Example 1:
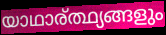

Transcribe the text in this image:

യാഥാര്ത്ഥ്യങ്ങളും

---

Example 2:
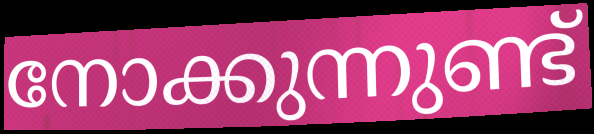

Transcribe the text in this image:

നോക്കുന്നുണ്ട്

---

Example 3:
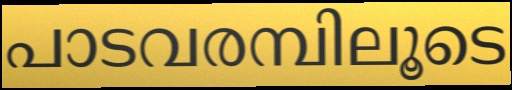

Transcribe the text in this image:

പാടവരമ്പിലൂടെ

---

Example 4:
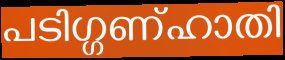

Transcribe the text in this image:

പടിഗ്ഗണ്ഹാതി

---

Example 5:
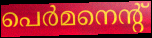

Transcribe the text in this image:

പെർമനെന്റ്